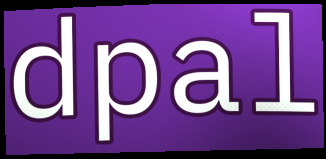
dpal